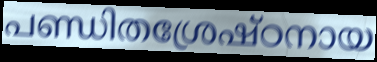
പണ്ഡിതശ്രേഷ്ഠനായ